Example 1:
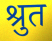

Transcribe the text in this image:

श्रुत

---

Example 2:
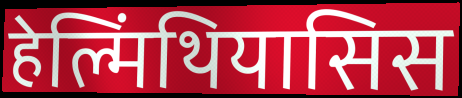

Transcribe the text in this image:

हेल्मिंथियासिस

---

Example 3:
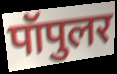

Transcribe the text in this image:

पॉपुलर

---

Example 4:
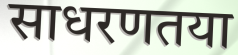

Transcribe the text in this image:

साधरणतया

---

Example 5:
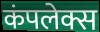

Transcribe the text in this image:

कंपलेक्स